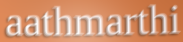
aathmarthi